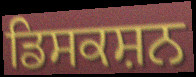
ਡਿਸਕਸ਼ਨ